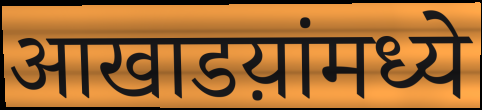
आखाडय़ांमध्ये